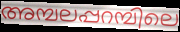
അമ്പലപ്പറമ്പിലെ